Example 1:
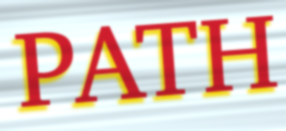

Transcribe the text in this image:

PATH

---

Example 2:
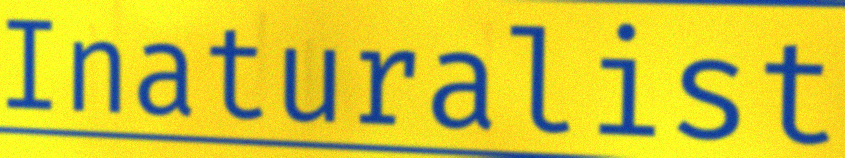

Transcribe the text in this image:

Inaturalist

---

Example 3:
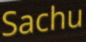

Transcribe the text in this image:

Sachu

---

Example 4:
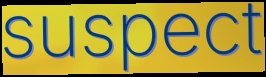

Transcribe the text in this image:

suspect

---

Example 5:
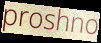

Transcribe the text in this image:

proshno